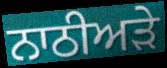
ਨਾਠੀਅੜੇ